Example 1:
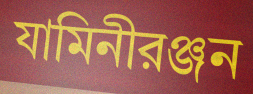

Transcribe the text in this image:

যামিনীরঞ্জন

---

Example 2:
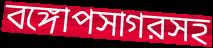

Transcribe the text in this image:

বঙ্গোপসাগরসহ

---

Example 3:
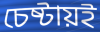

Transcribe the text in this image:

চেষ্টায়ই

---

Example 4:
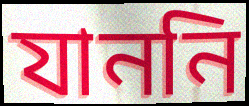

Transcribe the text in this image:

যাননি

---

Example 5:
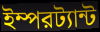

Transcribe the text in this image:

ইম্পরট্যান্ট